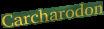
Carcharodon